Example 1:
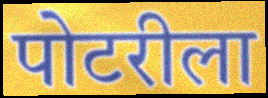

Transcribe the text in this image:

पोटरीला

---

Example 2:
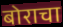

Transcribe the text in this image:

बोराचा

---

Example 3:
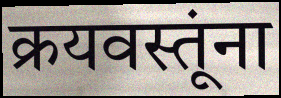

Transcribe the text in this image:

क्रयवस्तूंना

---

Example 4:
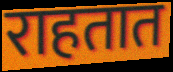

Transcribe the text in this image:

राहतात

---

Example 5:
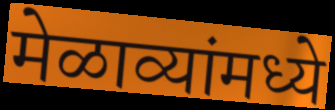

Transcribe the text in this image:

मेळाव्यांमध्ये